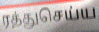
ரத்துசெய்ய